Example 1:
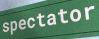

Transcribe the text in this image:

spectator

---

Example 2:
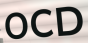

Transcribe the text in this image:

OCD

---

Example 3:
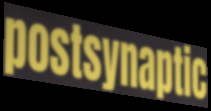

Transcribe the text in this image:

postsynaptic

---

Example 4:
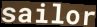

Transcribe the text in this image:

sailor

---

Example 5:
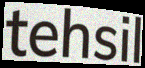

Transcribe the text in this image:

tehsil